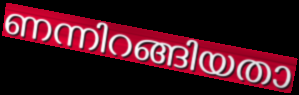
ണന്നിറങ്ങിയതാ